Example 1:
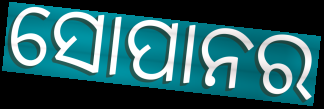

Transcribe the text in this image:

ସୋପାନର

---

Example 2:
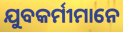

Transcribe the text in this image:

ଯୁବକର୍ମୀମାନେ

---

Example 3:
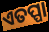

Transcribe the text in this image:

ଏତପ୍ପା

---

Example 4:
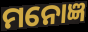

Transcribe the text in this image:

ମନୋଜ୍ଞ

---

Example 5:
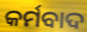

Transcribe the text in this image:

କର୍ମବାଦ